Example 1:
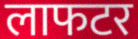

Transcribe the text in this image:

लाफटर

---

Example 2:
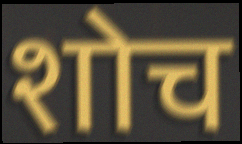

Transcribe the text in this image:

शोच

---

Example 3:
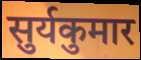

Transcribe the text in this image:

सुर्यकुमार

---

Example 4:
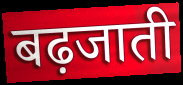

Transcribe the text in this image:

बढ़जाती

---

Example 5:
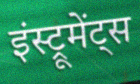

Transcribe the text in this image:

इंस्ट्रूमेंट्स